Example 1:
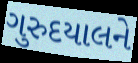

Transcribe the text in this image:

ગુરુદયાલને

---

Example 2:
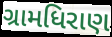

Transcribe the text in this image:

ગ્રામધિરાણ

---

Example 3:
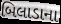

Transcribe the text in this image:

બિલાડાના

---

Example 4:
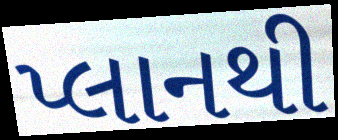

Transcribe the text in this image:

પ્લાનથી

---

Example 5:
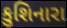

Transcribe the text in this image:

કુશિનારા